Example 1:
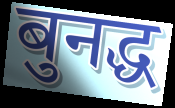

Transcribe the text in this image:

बुनद्ध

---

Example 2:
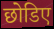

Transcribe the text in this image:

छोडिए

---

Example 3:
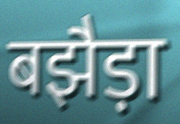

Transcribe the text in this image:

बझैड़ा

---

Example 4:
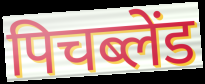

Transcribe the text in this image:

पिचब्लेंड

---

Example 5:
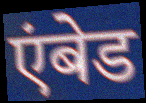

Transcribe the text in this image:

एंबेड